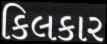
કિલકાર